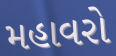
મહાવરો